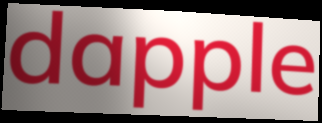
dapple